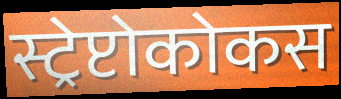
स्ट्रेप्टोकोकस